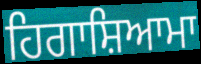
ਹਿਗਾਸ਼ਿਆਮਾ